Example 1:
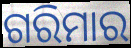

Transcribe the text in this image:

ଗରିମାର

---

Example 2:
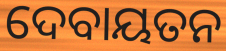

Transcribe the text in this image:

ଦେବାୟତନ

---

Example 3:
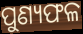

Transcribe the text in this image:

ପୁଣ୍ୟଫଳ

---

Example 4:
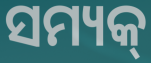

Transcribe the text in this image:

ସମ୍ୟକ୍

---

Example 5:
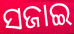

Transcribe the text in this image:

ସଜାଇ